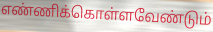
எண்ணிக்கொள்ளவேண்டும்